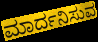
ಮಾರ್ದನಿಸುವ